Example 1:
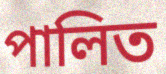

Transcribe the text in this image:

পালিত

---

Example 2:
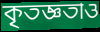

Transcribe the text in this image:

কৃতজ্ঞতাও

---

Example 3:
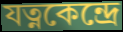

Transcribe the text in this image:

যত্নকেন্দ্রে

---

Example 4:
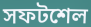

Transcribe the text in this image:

সফটশেল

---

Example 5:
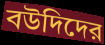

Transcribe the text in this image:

বউদিদের